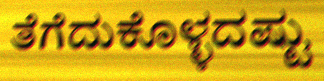
ತೆಗೆದುಕೊಳ್ಳದಷ್ಟು